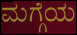
ಮಗ್ಗೆಯ